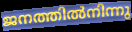
ജനത്തിൽനിന്നു